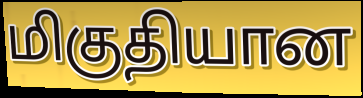
மிகுதியான